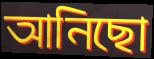
আনিছো